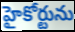
హైకోర్టును